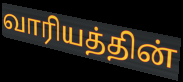
வாரியத்தின்